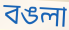
বঙলা